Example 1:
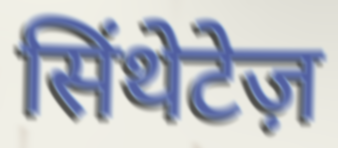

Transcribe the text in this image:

सिंथेटेज़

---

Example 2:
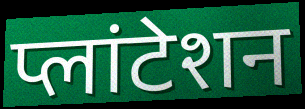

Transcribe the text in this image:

प्लांटेशन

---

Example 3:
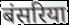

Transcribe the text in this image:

बंसरिया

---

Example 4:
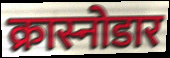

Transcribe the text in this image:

क्रास्नोडार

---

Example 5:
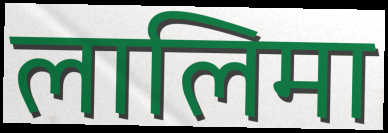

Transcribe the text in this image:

लालिमा